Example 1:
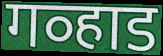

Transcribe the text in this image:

गव्हाड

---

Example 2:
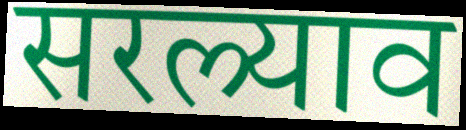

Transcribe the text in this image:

सरल्याव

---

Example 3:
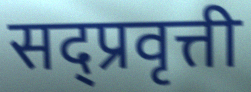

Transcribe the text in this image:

सद्प्रवृत्ती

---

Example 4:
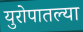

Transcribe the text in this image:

युरोपातल्या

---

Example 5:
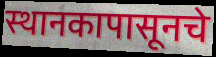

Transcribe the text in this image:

स्थानकापासूनचे